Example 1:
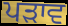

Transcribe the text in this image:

ਪੜਾਵ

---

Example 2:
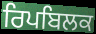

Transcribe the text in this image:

ਰਿਪਬਿਲਕ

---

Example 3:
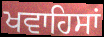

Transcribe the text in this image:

ਖਵਾਹਿਸਾਂ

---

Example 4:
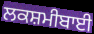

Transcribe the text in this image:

ਲਕਸ਼ਮੀਬਾਈ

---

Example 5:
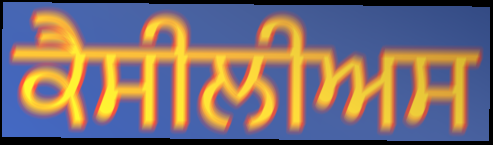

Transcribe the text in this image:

ਕੈਸੀਲੀਅਸ